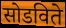
सोडविते